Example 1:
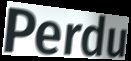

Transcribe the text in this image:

Perdu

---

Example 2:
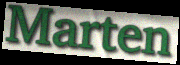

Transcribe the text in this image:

Marten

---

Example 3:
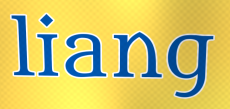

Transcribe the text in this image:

liang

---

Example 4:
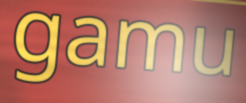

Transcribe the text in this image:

gamu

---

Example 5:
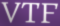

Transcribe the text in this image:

VTF